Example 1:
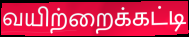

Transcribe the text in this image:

வயிற்றைக்கட்டி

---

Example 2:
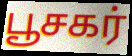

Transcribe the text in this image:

பூசகர்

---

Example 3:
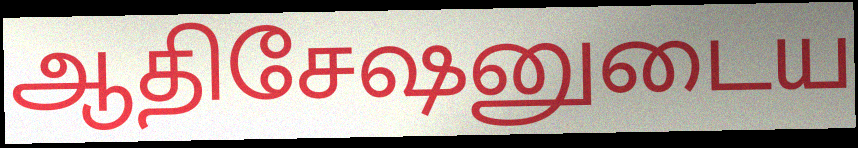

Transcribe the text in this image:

ஆதிசேஷனுடைய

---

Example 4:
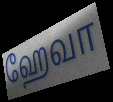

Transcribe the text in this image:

ஹேவா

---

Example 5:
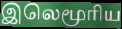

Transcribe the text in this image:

இலெமூரிய